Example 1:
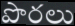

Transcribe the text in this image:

పొరలు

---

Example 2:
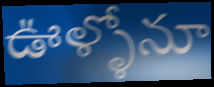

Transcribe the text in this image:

ఊళ్ళోనూ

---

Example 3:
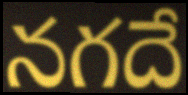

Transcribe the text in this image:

నగదే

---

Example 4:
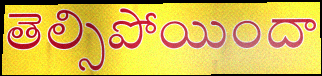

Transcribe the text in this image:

తెల్సిపోయిందా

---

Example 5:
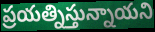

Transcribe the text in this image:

ప్రయత్నిస్తున్నాయని